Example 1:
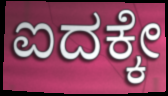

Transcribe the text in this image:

ಐದಕ್ಕೇ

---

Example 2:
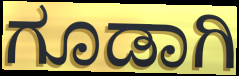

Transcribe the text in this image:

ಗೂಡಾಗಿ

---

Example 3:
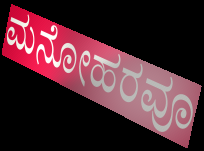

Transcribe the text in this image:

ಮನೋಹರವೂ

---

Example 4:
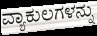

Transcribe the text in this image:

ವ್ಯಾಕುಲಗಳನ್ನು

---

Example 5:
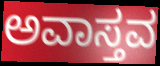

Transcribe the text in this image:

ಅವಾಸ್ತವ